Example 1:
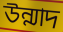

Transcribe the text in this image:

উন্মাদ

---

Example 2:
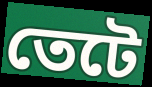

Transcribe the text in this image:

তেটে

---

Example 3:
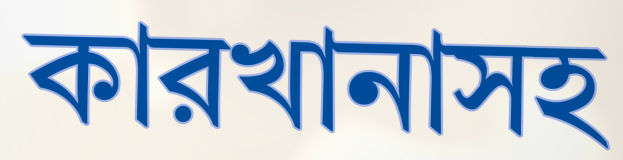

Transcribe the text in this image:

কারখানাসহ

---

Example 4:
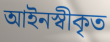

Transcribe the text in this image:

আইনস্বীকৃত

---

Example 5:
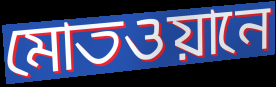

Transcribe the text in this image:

মোতওয়ানে